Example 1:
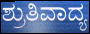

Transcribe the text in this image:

ಶ್ರುತಿವಾದ್ಯ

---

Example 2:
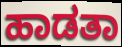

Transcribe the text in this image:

ಹಾಡತಾ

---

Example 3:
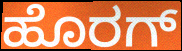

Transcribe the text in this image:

ಹೊರಗ್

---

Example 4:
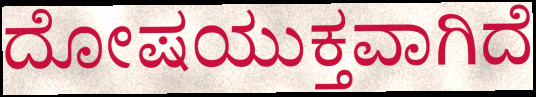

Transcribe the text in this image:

ದೋಷಯುಕ್ತವಾಗಿದೆ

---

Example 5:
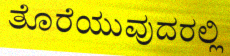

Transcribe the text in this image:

ತೊರೆಯುವುದರಲ್ಲಿ